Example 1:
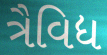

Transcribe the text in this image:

ત્રૈવિદ્ય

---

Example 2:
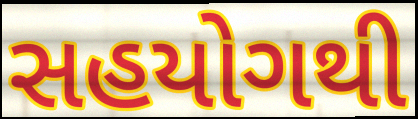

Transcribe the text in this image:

સહયોગથી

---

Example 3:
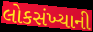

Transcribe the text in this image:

લોકસંખ્યાની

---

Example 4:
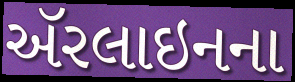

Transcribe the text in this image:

ઍરલાઇનના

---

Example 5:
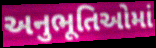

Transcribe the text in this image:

અનુભૂતિઓમાં